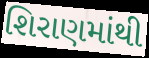
શિરાણમાંથી